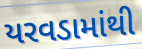
યરવડામાંથી